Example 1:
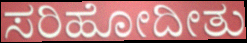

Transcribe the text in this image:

ಸರಿಹೋದೀತು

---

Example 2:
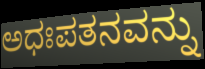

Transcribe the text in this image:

ಅಧಃಪತನವನ್ನು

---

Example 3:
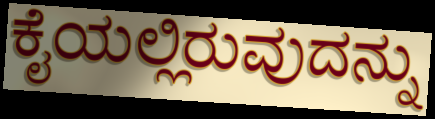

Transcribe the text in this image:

ಕೈಯಲ್ಲಿರುವುದನ್ನು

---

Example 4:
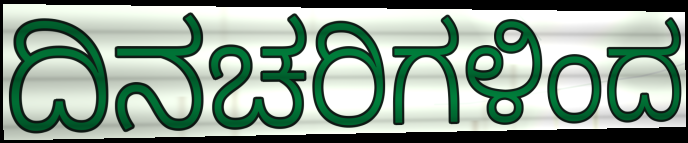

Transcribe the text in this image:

ದಿನಚರಿಗಳಿಂದ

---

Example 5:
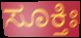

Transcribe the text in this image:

ಸೂಕ್ತಿಃ